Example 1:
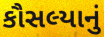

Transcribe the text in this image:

કૌસલ્યાનું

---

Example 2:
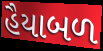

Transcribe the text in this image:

હૈયાબળ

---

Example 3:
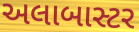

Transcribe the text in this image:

અલાબાસ્ટર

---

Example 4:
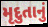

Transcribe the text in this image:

મૃદુતાનું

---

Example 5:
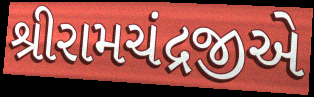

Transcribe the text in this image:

શ્રીરામચંદ્રજીએ